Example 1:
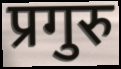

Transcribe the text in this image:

प्रगुरु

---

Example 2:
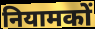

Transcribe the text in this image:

नियामकों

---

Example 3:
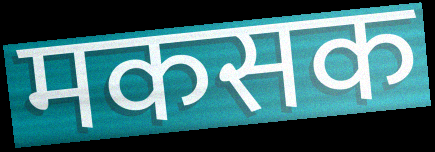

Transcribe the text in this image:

मकसक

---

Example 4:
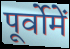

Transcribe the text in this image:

पूर्वोमें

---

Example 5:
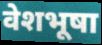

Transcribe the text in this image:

वेशभूषा